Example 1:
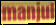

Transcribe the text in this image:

manjul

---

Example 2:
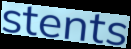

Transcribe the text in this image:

stents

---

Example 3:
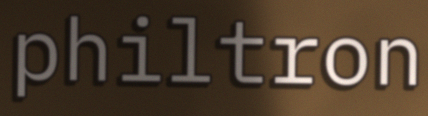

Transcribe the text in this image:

philtron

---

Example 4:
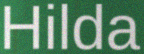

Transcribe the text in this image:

Hilda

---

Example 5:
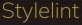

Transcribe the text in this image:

Stylelint